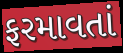
ફરમાવતાં